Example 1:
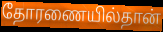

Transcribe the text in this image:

தோரணையில்தான்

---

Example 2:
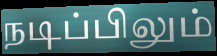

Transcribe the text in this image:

நடிப்பிலும்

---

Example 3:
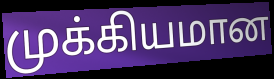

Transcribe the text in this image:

முக்கியமான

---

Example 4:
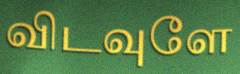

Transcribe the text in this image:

விடவுளே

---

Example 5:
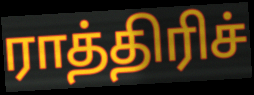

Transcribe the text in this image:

ராத்திரிச்